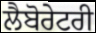
ਲੈਬੋਰੇਟਰੀ